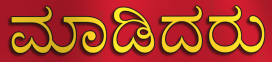
ಮಾಡಿದರು